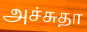
அச்சுதா